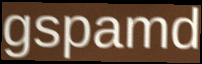
gspamd